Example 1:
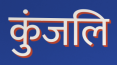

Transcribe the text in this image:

कुंजलि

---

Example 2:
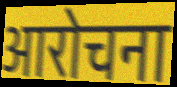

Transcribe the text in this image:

आरोचना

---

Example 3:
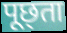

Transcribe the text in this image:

पूछ्ता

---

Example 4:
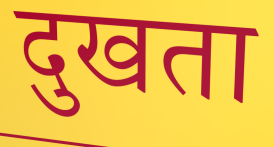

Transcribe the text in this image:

दुखता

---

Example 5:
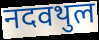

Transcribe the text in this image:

नदवथुल